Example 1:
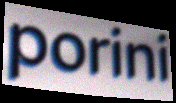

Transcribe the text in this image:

porini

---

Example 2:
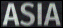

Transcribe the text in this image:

ASIA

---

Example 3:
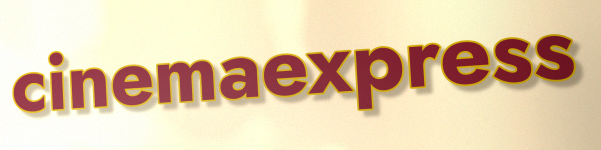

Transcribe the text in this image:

cinemaexpress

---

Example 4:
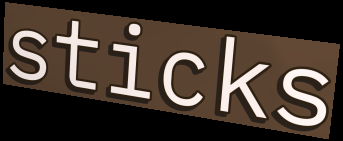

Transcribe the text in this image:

sticks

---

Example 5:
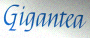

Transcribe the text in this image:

Gigantea